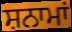
ਸ਼ਨਾਮਾਂ